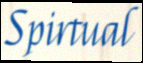
Spirtual